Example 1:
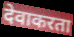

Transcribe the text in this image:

देवाकरता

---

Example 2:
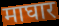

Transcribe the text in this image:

माघार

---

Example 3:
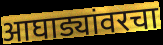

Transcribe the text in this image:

आघाड्यांवरचा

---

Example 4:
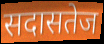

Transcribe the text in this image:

सदासतेज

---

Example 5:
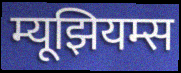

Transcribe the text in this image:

म्यूझियम्स